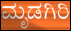
ಮೃಡಗಿರಿ